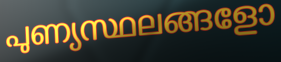
പുണ്യസ്ഥലങ്ങളോ